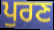
ਪੁਰਣ